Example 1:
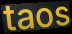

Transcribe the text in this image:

taos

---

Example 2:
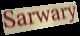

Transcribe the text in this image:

Sarwary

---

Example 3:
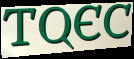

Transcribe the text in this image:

TQEC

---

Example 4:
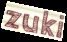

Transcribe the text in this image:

zuki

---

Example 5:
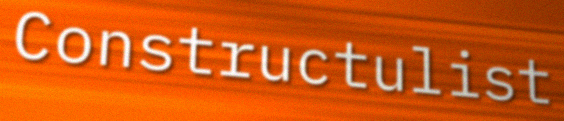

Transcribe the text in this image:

Constructulist